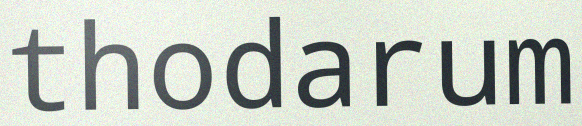
thodarum